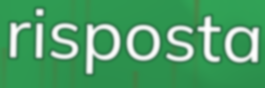
risposta